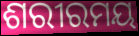
ଶରୀରମୟ